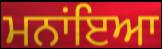
ਮਨਾਂਇਆ